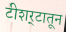
टीशर्टातून